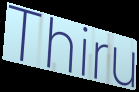
Thiru